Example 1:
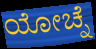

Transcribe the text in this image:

ಯೋಚ್ನೆ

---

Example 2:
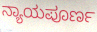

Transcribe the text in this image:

ನ್ಯಾಯಪೂರ್ಣ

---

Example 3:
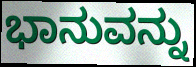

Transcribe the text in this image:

ಭಾನುವನ್ನು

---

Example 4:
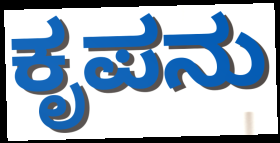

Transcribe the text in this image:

ಕೃಪನು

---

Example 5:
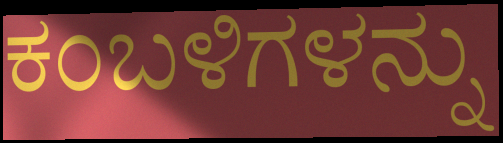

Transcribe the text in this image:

ಕಂಬಳಿಗಳನ್ನು